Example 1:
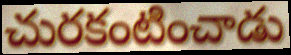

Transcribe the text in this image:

చురకంటించాడు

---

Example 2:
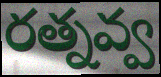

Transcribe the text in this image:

రత్నవ్వ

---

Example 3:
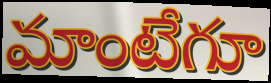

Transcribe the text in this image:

మాంటేగూ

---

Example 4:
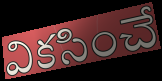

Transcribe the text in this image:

వికసించే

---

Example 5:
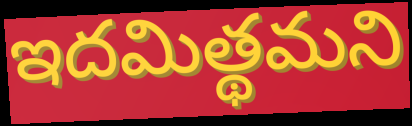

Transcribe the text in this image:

ఇదమిత్థమని